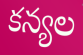
కన్యల